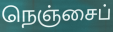
நெஞ்சைப்